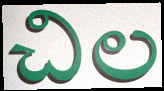
చిల